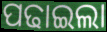
ପଢାଇଲା